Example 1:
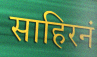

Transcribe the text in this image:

साहिरनं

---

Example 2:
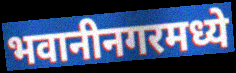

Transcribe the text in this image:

भवानीनगरमध्ये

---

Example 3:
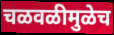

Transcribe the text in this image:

चळवळीमुळेच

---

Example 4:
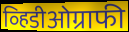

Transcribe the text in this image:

व्हिडीओग्राफी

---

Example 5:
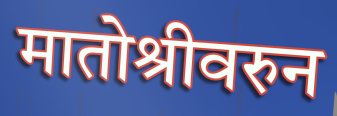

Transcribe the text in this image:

मातोश्रीवरुन